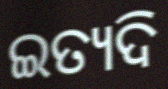
ଇତ୍ୟଦି